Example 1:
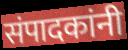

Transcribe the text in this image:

संपादकांनी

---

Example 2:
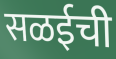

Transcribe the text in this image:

सळईची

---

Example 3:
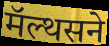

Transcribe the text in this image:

मॅल्थसने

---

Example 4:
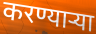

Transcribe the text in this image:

करण्यार्‍या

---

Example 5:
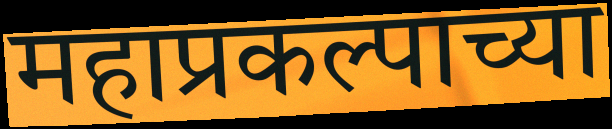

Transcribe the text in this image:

महाप्रकल्पाच्या